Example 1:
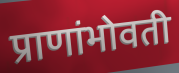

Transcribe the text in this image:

प्राणांभोवती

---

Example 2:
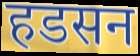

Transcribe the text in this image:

हडसन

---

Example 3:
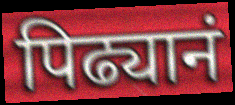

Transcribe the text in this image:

पिढ्यानं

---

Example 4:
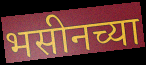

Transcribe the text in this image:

भसीनच्या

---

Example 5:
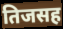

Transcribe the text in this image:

तिजसह